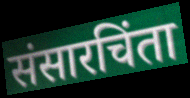
संसारचिंता